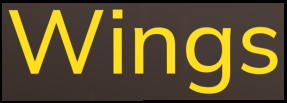
Wings